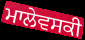
ਮਾਲੇਵਸਕੀ